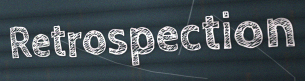
Retrospection